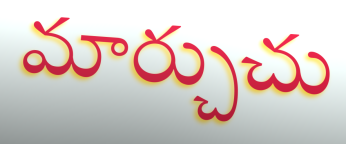
మార్చుచు